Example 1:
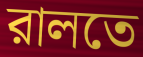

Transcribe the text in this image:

রালতে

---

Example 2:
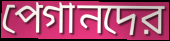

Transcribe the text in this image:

পেগানদের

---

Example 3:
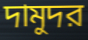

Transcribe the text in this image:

দামুদর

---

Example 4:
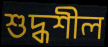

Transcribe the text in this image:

শুদ্ধশীল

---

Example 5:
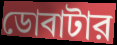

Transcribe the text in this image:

ডোবাটার